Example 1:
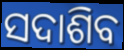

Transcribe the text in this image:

ସଦାଶିବ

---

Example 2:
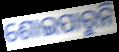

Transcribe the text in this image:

ଶୋଇପାରୁନି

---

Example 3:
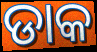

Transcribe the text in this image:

ଡାକ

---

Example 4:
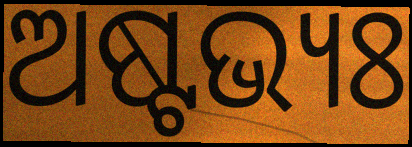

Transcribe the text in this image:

ଅଷ୍ଟଭ୍ୟଃ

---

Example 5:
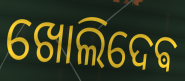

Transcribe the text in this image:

ଖୋଲିଦେଵ